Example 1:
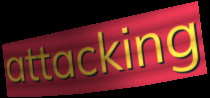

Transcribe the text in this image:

attacking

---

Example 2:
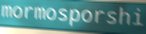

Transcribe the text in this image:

mormosporshi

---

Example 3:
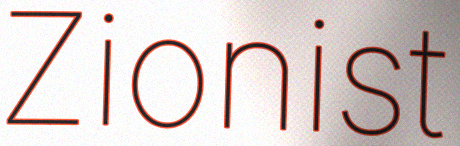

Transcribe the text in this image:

Zionist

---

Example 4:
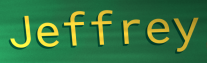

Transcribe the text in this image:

Jeffrey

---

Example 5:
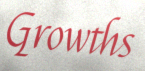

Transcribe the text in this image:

Growths